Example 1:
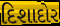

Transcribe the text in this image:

દિશાદોર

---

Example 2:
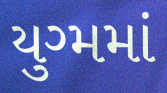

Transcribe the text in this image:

યુગ્મમાં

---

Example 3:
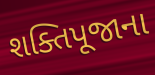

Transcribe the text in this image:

શક્તિપૂજાના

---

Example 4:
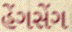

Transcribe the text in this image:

હેંગસેંગ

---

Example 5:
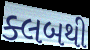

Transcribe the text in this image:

ક્લબથી